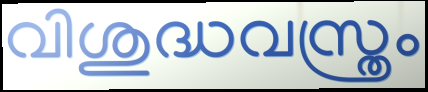
വിശുദ്ധവസ്ത്രം